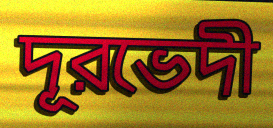
দূরভেদী